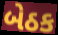
બેઠક